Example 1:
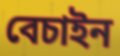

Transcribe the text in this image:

বেচাইন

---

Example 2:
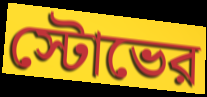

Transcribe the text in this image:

স্টোভের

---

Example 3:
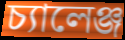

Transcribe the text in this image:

চ্যালেঞ্জ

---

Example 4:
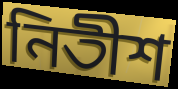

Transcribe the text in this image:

নিতীশ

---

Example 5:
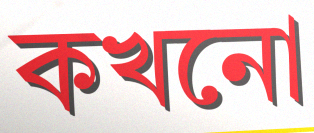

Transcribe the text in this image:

কখনো